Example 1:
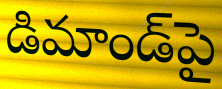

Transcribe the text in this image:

డిమాండ్‌పై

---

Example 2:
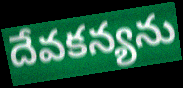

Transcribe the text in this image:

దేవకన్యను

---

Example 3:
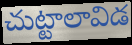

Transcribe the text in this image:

చుట్టాలావిడ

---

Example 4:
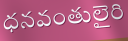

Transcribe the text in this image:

ధనవంతులైరి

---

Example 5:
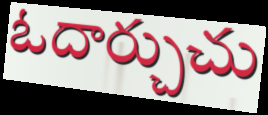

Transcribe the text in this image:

ఓదార్చుచు